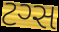
ટગ્સ